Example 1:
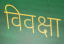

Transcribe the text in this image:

विवक्षा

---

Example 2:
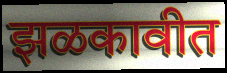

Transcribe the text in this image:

झळकावीत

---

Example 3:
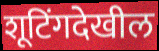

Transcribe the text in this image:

शूटिंगदेखील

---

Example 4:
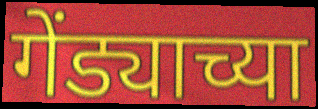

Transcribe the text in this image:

गेंड्याच्या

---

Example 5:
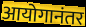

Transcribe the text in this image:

आयोगानंतर